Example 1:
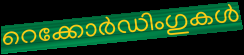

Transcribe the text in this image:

റെക്കോർഡിംഗുകൾ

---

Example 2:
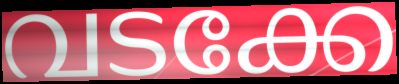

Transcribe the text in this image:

വടക്കേ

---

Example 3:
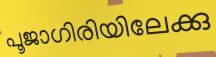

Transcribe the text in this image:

പൂജാഗിരിയിലേക്കു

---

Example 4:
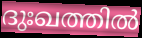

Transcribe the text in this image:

ദുഃഖത്തിൽ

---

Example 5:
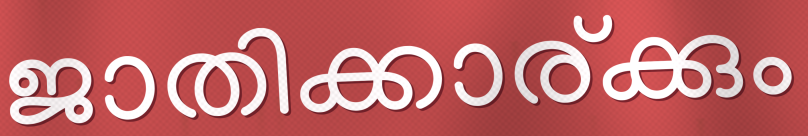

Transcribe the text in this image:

ജാതിക്കാര്ക്കും